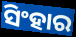
ସିଂହାର